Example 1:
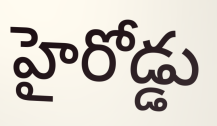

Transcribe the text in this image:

హైరోడ్డు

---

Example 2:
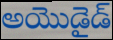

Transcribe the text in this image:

అయొడైడ్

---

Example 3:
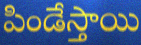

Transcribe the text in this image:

పిండేస్తాయి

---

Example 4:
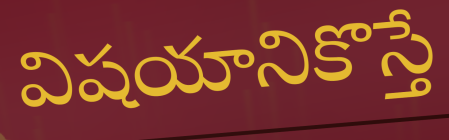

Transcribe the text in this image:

విషయానికొస్తే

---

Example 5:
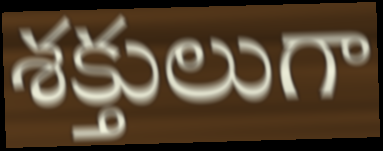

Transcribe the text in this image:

శక్తులుగా